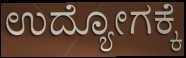
ಉದ್ಯೋಗಕ್ಕೆ